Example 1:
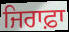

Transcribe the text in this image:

ਜਿਰਾਫ਼ਾ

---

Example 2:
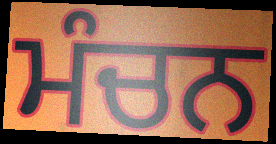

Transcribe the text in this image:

ਮੰਚਨ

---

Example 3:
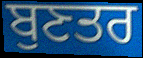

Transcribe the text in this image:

ਬੁਣਤਰ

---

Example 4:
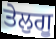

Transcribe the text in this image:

ਤੇਲੁਗੂ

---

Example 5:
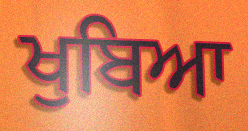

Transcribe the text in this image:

ਖੁਬਿਆ